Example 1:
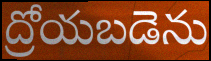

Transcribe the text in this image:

ద్రోయబడెను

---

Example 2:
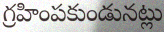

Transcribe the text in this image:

గ్రహింపకుండునట్లు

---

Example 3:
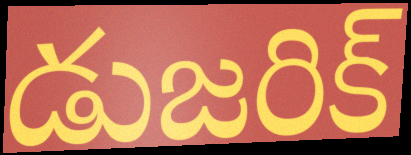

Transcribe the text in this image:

డుజరిక్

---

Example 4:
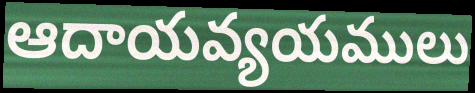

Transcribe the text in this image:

ఆదాయవ్యయములు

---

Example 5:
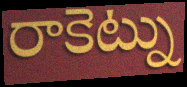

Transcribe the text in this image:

రాకెట్ను